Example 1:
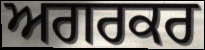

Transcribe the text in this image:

ਅਗਰਕਰ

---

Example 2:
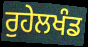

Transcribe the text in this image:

ਰੁਹੇਲਖੰਡ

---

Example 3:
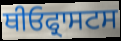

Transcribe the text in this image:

ਥੀਓਫ੍ਰਾਸਟਸ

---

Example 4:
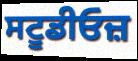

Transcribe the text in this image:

ਸਟੂਡੀਓਜ਼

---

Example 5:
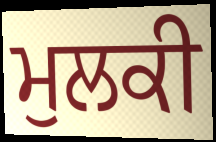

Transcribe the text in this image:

ਮੁਲਕੀ